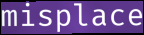
misplace